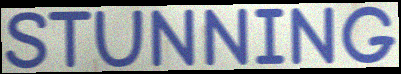
STUNNING